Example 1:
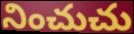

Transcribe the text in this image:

నించుచు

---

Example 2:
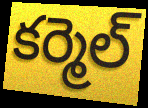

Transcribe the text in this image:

కర్మెల్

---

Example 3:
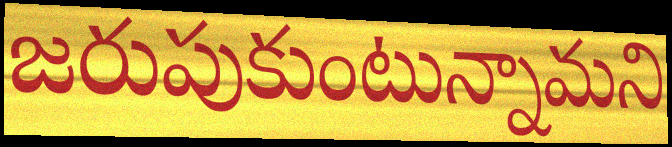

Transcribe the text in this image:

జరుపుకుంటున్నామని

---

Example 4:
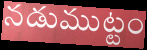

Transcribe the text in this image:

నడుముట్టం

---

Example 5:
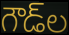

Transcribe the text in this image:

గౌడ్‌ల